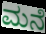
ಮನೆ